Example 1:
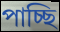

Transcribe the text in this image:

পাচ্ছি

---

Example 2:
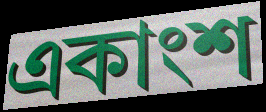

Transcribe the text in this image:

একাংশ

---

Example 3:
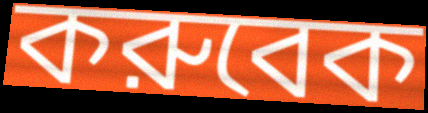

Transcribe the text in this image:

করুবেক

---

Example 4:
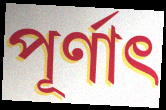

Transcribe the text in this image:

পূর্ণাৎ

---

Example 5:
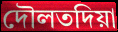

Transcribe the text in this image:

দৌলতদিয়া